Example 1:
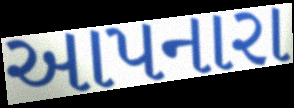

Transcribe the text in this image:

આપનારા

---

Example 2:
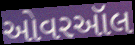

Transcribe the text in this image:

ઓવરઑલ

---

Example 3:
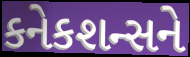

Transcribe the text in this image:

કનેકશન્સને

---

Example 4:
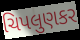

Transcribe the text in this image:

ચિપલુણકર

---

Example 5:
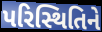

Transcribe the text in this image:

પરિસ્થિતિને